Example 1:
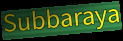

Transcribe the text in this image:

Subbaraya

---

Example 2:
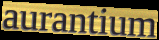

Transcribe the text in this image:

aurantium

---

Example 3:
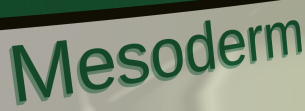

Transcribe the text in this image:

Mesoderm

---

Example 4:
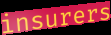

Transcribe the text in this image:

insurers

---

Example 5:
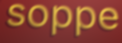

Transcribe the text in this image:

soppe